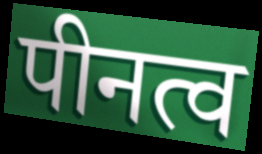
पीनत्व